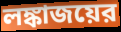
লঙ্কাজয়ের